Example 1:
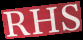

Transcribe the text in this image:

RHS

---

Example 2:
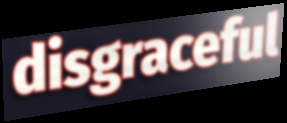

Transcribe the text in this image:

disgraceful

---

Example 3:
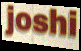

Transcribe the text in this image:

joshi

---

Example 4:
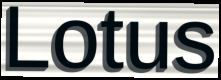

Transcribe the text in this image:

Lotus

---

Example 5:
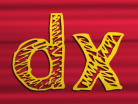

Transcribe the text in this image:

dx